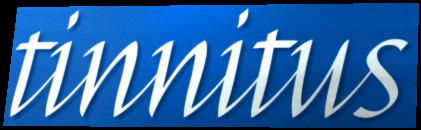
tinnitus